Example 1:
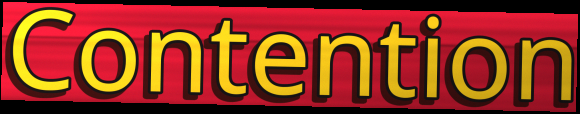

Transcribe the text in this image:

Contention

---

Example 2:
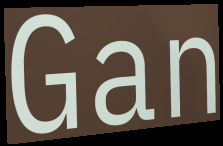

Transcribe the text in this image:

Gan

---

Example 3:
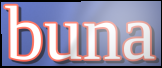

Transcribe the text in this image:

buna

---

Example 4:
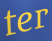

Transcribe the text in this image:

ter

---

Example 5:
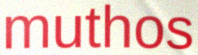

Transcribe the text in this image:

muthos